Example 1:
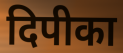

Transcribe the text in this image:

दिपीका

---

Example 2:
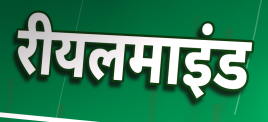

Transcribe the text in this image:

रीयलमाइंड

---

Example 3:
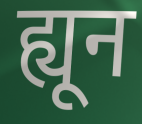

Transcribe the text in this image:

ह्यून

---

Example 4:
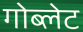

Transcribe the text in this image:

गोब्लेट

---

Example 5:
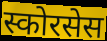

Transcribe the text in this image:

स्कोरसेस